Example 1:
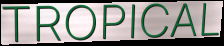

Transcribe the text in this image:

TROPICAL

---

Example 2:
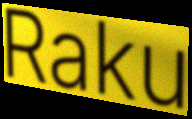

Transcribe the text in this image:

Raku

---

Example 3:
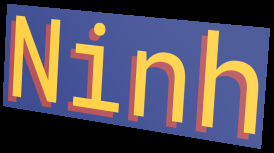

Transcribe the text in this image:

Ninh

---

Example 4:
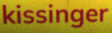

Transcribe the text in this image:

kissinger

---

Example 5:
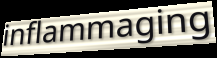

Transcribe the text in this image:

inflammaging